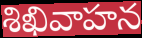
శిఖివాహన